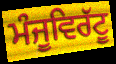
ਮੰਜੂਵਿਰੱਟੂ